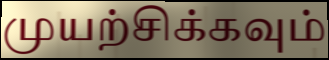
முயற்சிக்கவும்